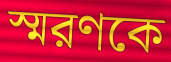
স্মরণকে